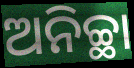
ଅନିଚ୍ଛା